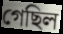
গেছিল